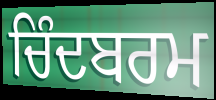
ਚਿੰਦਬਰਮ